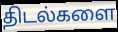
திடல்களை